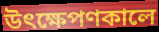
উৎক্ষেপণকালে